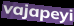
vajapeyi